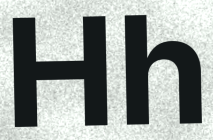
Hh